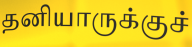
தனியாருக்குச்